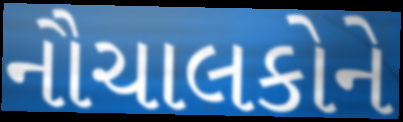
નૌચાલકોને